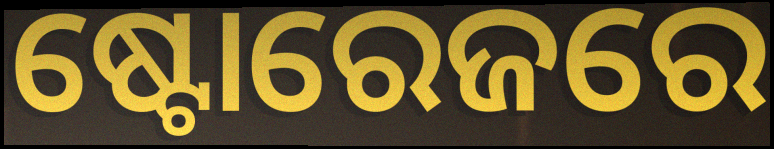
ଷ୍ଟୋରେଜରେ